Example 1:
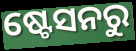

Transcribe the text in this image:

ଷ୍ଟେସନରୁ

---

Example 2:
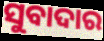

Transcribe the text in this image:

ସୁବାଦାର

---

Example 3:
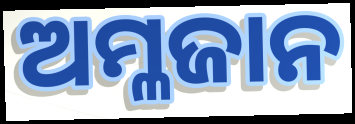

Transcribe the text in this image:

ଅମ୍ଳଜାନ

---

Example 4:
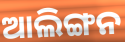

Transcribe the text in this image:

ଆଲିଙ୍ଗନ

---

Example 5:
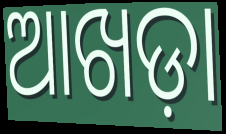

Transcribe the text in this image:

ଆଖଡ଼ା